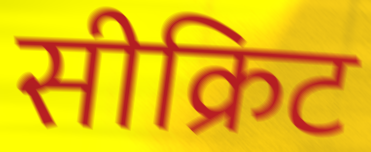
सीक्रिट